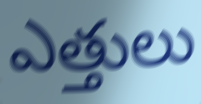
ఎత్తులు